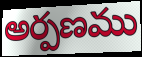
అర్పణము